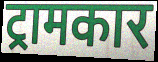
ट्रामकार